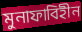
মুনাফাবিহীন